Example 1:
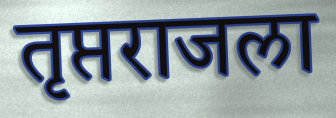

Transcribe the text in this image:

तृप्तराजला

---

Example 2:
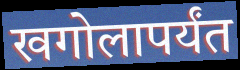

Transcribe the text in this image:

खगोलापर्यंत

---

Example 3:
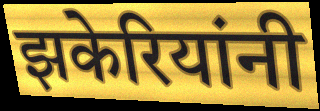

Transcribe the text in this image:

झकेरियांनी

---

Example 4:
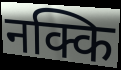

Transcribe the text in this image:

नक्कि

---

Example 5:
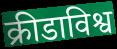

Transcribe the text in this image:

क्रीडाविश्व